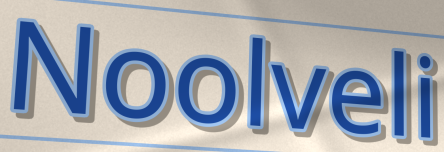
Noolveli